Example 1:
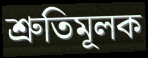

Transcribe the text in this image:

শ্রুতিমূলক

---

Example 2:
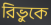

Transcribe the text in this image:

রিভুকে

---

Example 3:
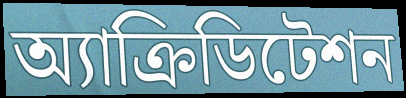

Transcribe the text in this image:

অ্যাক্রিডিটেশন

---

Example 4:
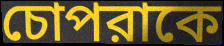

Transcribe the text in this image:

চোপরাকে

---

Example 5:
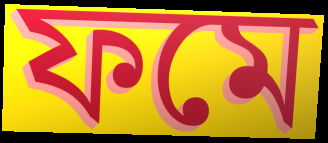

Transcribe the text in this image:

ফমে